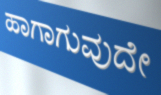
ಹಾಗಾಗುವುದೇ